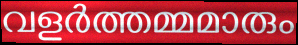
വളർത്തമ്മമാരും